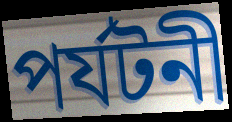
পর্যটনী